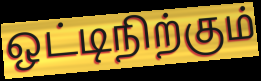
ஒட்டிநிற்கும்